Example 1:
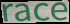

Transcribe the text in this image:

race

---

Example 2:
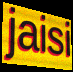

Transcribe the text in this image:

jaisi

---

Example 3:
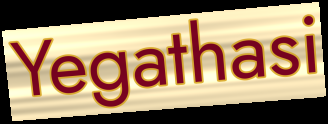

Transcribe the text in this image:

Yegathasi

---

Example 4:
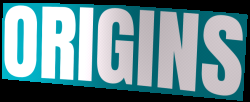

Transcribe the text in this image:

ORIGINS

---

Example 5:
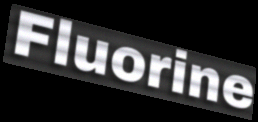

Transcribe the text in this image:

Fluorine